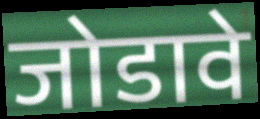
जोडावे